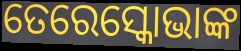
ତେରେସ୍କୋଭାଙ୍କ